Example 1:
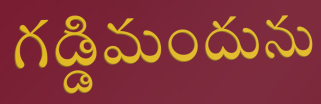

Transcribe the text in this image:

గడ్డిమందును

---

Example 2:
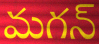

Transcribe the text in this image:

మగన్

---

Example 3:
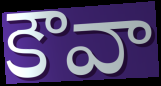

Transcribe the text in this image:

కౌవా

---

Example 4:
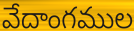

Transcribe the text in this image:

వేదాంగముల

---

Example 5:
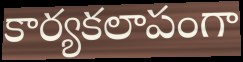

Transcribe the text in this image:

కార్యకలాపంగా